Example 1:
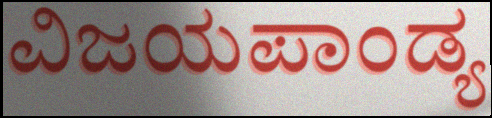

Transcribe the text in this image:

ವಿಜಯಪಾಂಡ್ಯ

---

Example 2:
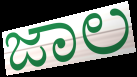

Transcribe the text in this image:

ಜಾಲ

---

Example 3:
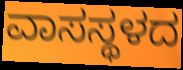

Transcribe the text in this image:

ವಾಸಸ್ಥಳದ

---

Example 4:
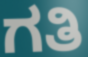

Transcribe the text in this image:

ಗತಿ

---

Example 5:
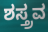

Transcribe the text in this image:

ಶಸ್ತ್ರವ